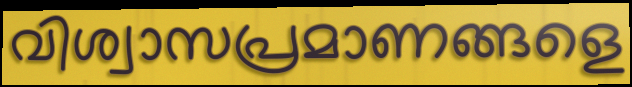
വിശ്വാസപ്രമാണങ്ങളെ